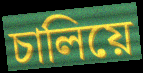
চালিয়ে